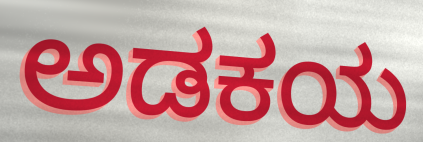
ಅಡಕಯ